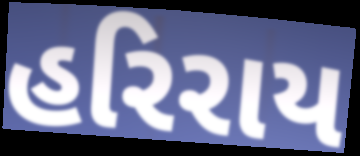
હરિરાય